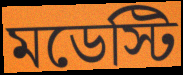
মডেস্টি